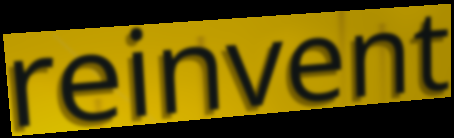
reinvent